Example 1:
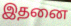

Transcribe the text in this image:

இதனை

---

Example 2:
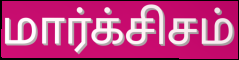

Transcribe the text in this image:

மார்க்சிசம்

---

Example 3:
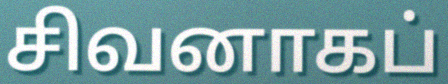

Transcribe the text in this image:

சிவனாகப்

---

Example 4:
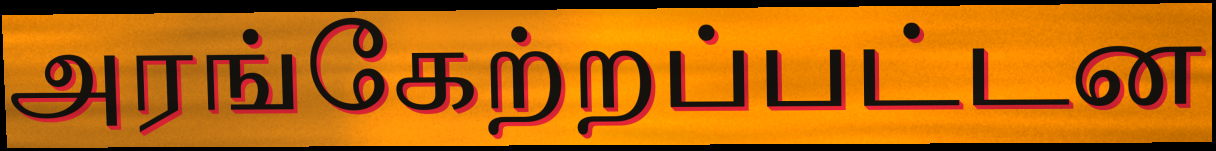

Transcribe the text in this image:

அரங்கேற்றப்பட்டன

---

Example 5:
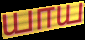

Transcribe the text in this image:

யாய